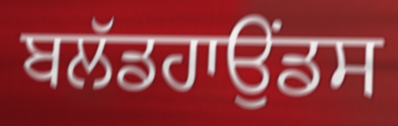
ਬਲੱਡਹਾਉਂਡਸ